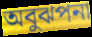
অবুঝপনা